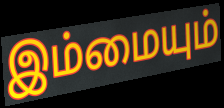
இம்மையும்